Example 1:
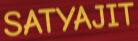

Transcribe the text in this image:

SATYAJIT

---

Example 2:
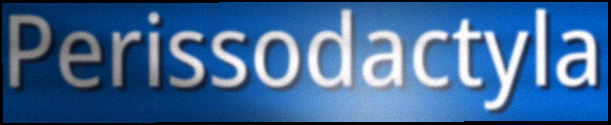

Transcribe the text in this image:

Perissodactyla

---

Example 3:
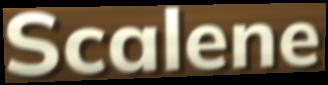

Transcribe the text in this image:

Scalene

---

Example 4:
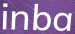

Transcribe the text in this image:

inba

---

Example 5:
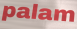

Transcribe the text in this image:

palam